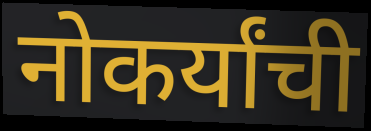
नोकर्यांची